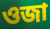
ওজা